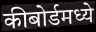
कीबोर्डमध्ये